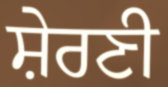
ਸ਼ੇਰਣੀ